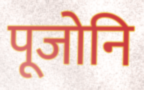
पूजोनि